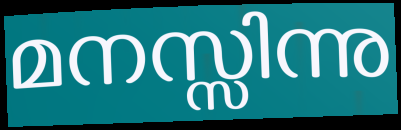
മനസ്സിന്നു